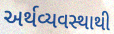
અર્થવ્યવસ્થાથી